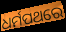
ଧର୍ମପଥରେ